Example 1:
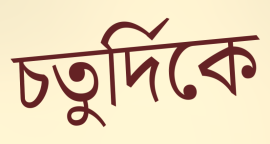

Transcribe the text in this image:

চতুর্দিকে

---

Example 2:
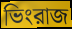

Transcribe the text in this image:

ভিংরাজ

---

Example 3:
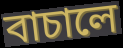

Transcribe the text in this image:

বাচালে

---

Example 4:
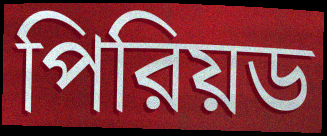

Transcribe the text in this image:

পিরিয়ড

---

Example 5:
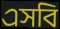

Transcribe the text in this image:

এসবি